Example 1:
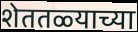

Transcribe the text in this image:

शेततळ्याच्या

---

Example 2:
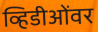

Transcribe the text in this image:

व्हिडीओंवर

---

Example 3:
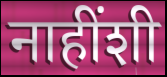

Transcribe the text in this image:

नाहींशी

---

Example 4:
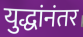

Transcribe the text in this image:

युद्धांनंतर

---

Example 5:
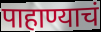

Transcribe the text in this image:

पाहाण्याचं